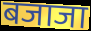
बजाजा